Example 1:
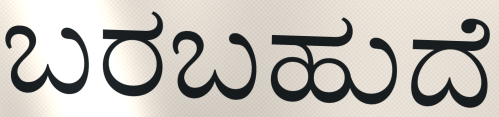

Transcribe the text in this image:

ಬರಬಹುದೆ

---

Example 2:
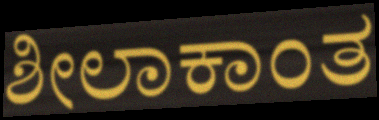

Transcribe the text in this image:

ಶೀಲಾಕಾಂತ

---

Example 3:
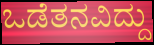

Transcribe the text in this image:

ಒಡೆತನವಿದ್ದು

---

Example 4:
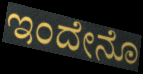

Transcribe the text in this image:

ಇಂದೇನೊ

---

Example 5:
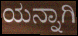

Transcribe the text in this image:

ಯನ್ನಾಗಿ